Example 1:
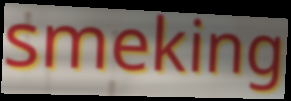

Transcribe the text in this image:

smeking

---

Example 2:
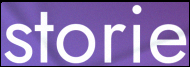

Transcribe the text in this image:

storie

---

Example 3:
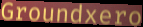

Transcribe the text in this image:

Groundxero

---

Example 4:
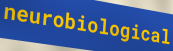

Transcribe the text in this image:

neurobiological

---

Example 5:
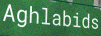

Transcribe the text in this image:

Aghlabids